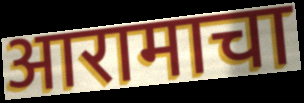
आरामाचा